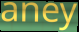
aney